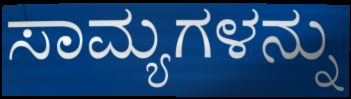
ಸಾಮ್ಯಗಳನ್ನು